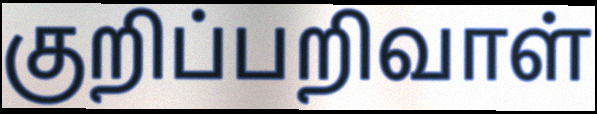
குறிப்பறிவாள்